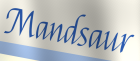
Mandsaur